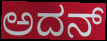
ಅದನ್